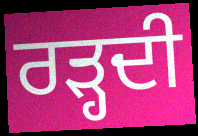
ਰੜ੍ਹਦੀ